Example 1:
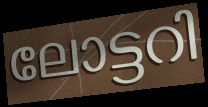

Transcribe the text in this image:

ലോട്ടറി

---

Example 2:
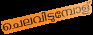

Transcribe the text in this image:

ചെലവിടുമ്പോള്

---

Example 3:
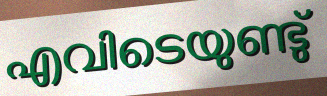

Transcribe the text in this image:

എവിടെയുണ്ടു്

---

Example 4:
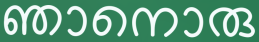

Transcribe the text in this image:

ഞാനൊരു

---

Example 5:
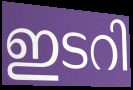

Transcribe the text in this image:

ഇടറി